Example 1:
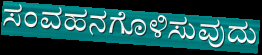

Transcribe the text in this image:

ಸಂವಹನಗೊಳಿಸುವುದು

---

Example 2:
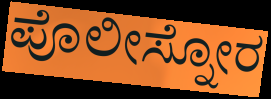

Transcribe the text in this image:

ಪೊಲೀಸ್ನೋರ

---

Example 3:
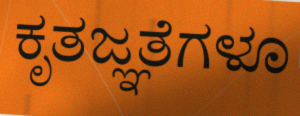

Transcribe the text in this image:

ಕೃತಜ್ಞತೆಗಳೂ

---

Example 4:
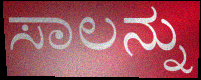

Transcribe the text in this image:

ಸಾಲನ್ನು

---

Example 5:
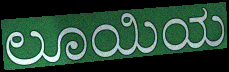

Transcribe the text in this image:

ಲೂಯಿಯ